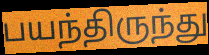
பயந்திருந்து